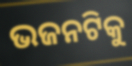
ଭଜନଟିକୁ